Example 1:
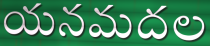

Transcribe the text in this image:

యనమదల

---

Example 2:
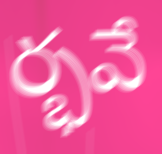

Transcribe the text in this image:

ర్భవే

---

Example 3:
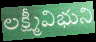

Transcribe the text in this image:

లక్ష్మీవిభుని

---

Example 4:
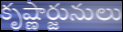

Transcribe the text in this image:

కృష్ణార్జునులు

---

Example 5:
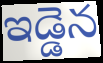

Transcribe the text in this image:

ఇడ్డెన